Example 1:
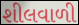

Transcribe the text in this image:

શીલવાળી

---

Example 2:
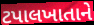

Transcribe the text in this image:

ટપાલખાતાને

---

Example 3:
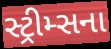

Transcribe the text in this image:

સ્ટ્રીમ્સના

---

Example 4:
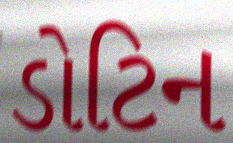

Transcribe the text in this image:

ડોટિન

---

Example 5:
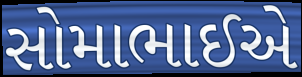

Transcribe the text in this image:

સોમાભાઈએ